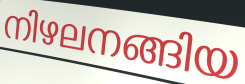
നിഴലനങ്ങിയ